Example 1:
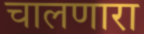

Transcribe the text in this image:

चालणारा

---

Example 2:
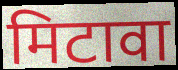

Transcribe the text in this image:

मिटावा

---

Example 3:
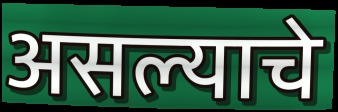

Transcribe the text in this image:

असल्याचे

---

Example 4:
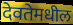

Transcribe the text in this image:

देवतेमधील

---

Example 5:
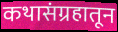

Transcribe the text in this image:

कथासंग्रहातून